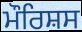
ਮੌਰਿਸ਼ਸ